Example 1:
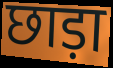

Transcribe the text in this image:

छाड़ा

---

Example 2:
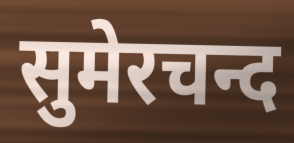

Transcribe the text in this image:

सुमेरचन्द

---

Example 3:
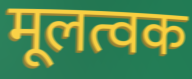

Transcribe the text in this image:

मूलत्वक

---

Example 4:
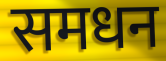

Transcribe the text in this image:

समधन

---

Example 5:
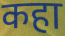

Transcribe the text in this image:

कहा